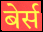
बेर्स